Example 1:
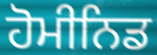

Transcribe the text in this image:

ਹੋਮੀਨਿਡ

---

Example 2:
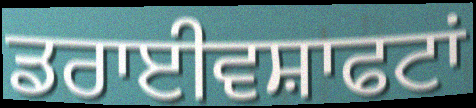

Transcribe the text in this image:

ਡਰਾਈਵਸ਼ਾਫਟਾਂ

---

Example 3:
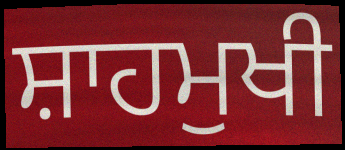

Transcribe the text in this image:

ਸ਼ਾਹਮੁਖੀ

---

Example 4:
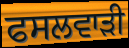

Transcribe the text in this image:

ਫਸਲਵਾੜੀ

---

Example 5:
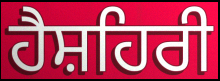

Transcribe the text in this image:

ਹੈਸ਼ਹਿਰੀ